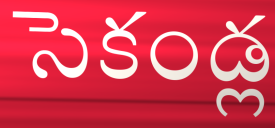
సెకండ్ల